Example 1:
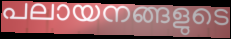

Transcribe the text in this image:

പലായനങ്ങളുടെ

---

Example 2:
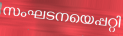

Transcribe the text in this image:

സംഘടനയെപ്പറ്റി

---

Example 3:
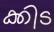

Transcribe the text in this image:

ക്കിട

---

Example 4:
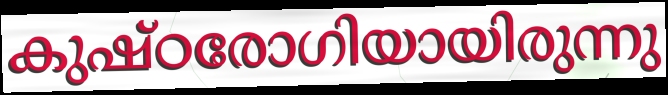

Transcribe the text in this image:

കുഷ്ഠരോഗിയായിരുന്നു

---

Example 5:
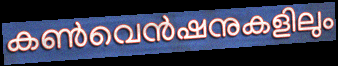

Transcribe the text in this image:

കൺവെൻഷനുകളിലും